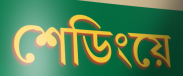
শেডিংয়ে